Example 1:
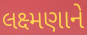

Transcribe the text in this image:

લક્ષ્મણાને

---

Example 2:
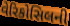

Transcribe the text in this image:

વેરિકોસિલની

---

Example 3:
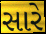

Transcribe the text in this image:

સારે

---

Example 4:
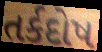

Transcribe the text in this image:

તર્કદોષ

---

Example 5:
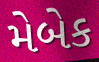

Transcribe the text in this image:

મેબેક